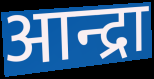
आन्द्रा